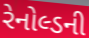
રેનોલ્ડની